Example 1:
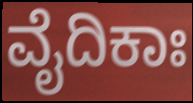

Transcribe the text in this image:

ವೈದಿಕಾಃ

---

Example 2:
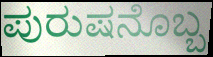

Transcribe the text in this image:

ಪುರುಷನೊಬ್ಬ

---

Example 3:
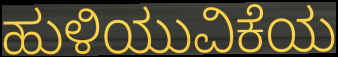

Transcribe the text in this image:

ಹುಳಿಯುವಿಕೆಯ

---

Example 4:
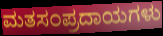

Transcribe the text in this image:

ಮತಸಂಪ್ರದಾಯಗಳು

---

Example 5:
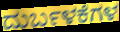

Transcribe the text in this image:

ದುರ್ಬಳಕೆಗಳ